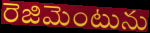
రెజిమెంటును